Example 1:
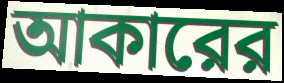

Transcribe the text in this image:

আকারের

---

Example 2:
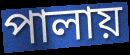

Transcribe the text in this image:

পালায়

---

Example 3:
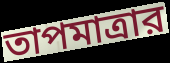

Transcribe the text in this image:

তাপমাত্রার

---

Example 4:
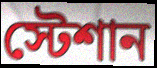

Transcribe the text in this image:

স্টেশান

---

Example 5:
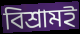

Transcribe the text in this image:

বিশ্রামই